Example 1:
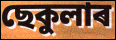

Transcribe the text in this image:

ছেকুলাৰ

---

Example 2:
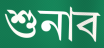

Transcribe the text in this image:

শুনাব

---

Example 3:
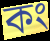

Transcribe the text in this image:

কং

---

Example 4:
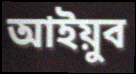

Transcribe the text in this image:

আইয়ুব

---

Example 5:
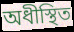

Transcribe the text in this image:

অধীস্থিত